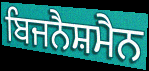
ਬਿਜਨੈਸ਼ਮੈਨ